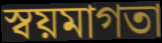
স্বয়মাগতা